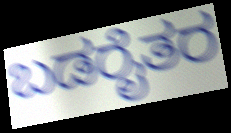
ಬಡರೈತರ